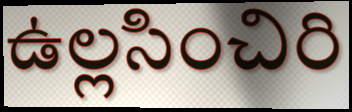
ఉల్లసించిరి